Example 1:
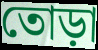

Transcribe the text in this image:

তোড়া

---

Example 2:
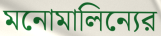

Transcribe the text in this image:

মনোমালিন্যের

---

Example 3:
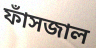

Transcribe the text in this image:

ফাঁসজাল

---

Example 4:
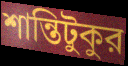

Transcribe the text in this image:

শান্তিটুকুর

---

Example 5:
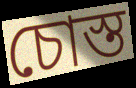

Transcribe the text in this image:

চোস্ত